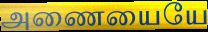
அணையையே